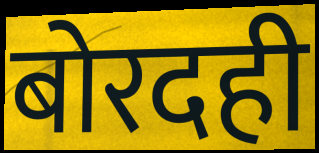
बोरदही